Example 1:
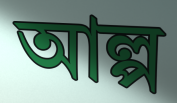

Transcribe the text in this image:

আল্প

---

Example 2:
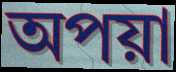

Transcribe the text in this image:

অপয়া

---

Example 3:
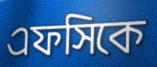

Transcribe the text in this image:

এফসিকে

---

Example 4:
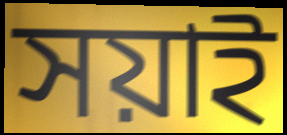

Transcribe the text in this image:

সয়াই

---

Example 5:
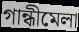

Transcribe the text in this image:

গান্ধীমেলা